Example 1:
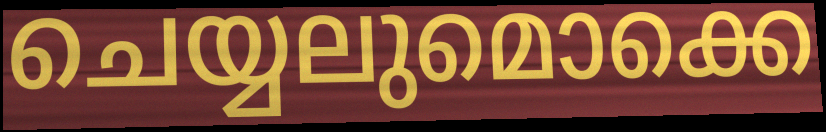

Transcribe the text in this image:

ചെയ്യലുമൊക്കെ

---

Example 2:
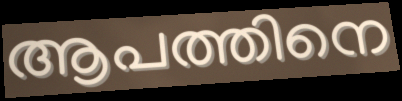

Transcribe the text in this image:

ആപത്തിനെ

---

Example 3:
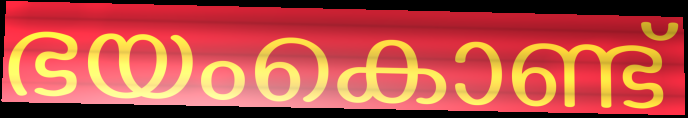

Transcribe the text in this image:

ഭയംകൊണ്ട്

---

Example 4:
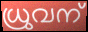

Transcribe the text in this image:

ധ്രുവന്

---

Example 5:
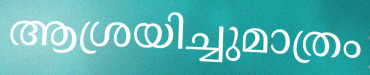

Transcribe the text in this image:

ആശ്രയിച്ചുമാത്രം